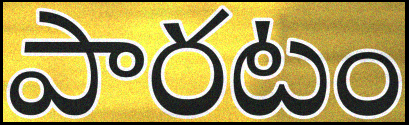
పారటం